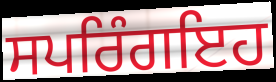
ਸਪਰਿੰਗਇਹ